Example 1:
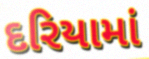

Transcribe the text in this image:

દરિયામાં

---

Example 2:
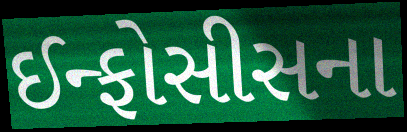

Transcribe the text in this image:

ઈન્ફોસીસના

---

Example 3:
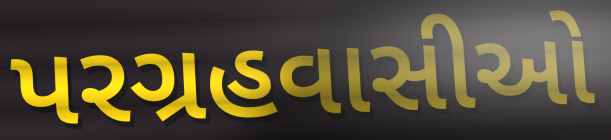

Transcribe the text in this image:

પરગ્રહવાસીઓ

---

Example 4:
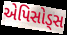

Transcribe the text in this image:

એપિસોડ્સ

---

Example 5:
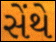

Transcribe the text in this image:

સેંથે